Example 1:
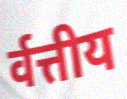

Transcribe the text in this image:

र्वत्तीय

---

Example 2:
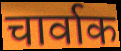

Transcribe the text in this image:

चार्वाक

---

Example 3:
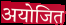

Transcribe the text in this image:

अयोजित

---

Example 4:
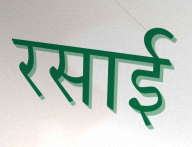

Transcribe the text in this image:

रसाई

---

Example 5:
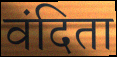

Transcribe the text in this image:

वंदिता